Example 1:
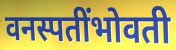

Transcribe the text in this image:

वनस्पतींभोवती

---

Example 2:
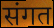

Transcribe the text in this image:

संगत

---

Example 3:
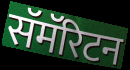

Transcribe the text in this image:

सॅमॅरिटन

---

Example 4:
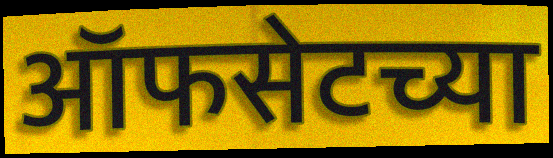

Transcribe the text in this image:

ऑफसेटच्या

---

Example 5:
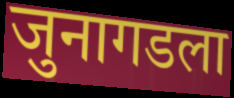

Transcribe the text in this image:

जुनागडला